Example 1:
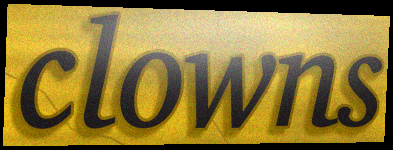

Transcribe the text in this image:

clowns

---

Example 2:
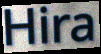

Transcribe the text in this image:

Hira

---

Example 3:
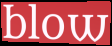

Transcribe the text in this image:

blow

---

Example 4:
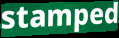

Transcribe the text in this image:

stamped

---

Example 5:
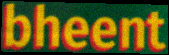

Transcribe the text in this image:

bheent